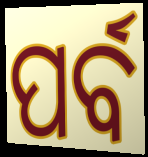
ପର୍ବ